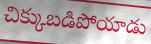
చిక్కుబడిపోయాడు